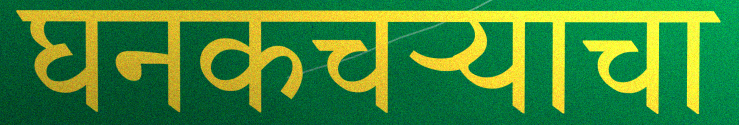
घनकचऱ्याचा